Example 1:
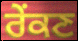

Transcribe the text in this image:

ਰੇੰਕਣ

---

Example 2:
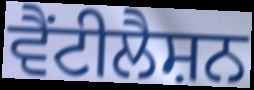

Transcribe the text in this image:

ਵੈਂਟੀਲੈਸ਼ਨ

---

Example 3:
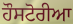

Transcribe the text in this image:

ਹੌਸਟੋਰੀਆ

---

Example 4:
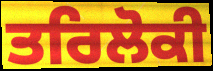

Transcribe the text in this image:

ਤਰਿਲੋਕੀ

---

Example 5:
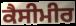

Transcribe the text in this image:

ਕੈਸੀਮੀਰ